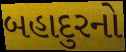
બહાદુરનો